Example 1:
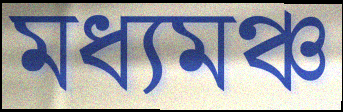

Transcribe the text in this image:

মধ্যমঞ্চ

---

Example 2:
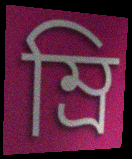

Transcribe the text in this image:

ম্রি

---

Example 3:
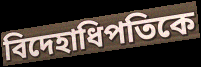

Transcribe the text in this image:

বিদেহাধিপতিকে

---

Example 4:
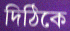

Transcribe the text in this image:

দিঠিকে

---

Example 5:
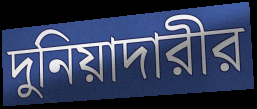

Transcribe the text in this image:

দুনিয়াদারীর